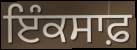
ਇੰਕਸਾਫ਼